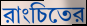
রাংচিতের